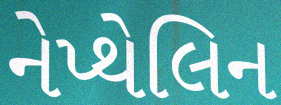
નેપ્થેલિન